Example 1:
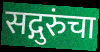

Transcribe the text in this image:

सद्गुरुंचा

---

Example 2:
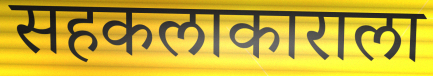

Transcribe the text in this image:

सहकलाकाराला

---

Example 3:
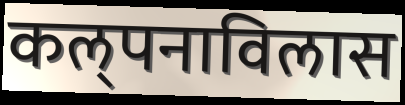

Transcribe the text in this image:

कल्पनाविलास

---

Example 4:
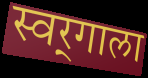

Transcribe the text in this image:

स्वर्गाला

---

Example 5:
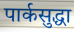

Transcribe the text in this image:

पार्कसुद्धा